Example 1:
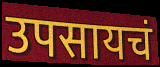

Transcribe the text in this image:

उपसायचं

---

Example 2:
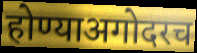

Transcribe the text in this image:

होण्याअगोदरच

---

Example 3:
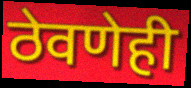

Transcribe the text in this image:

ठेवणेही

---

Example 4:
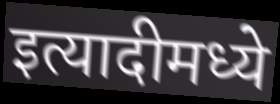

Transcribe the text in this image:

इत्यादीमध्ये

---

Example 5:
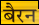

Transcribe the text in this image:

बैरन